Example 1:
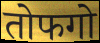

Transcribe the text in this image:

तोफगो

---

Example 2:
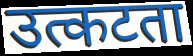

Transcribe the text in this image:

उत्कटता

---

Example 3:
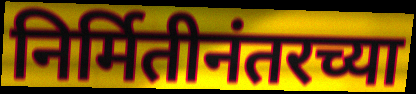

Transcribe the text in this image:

निर्मितीनंतरच्या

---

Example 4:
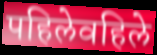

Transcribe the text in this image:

पहिलेवहिले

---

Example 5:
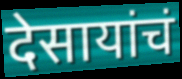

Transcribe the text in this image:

देसायांचं